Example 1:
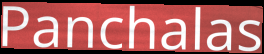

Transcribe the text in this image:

Panchalas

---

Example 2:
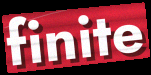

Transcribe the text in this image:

finite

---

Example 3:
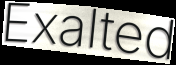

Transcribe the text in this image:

Exalted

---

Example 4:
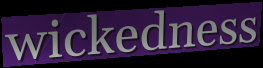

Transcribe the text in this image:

wickedness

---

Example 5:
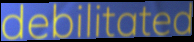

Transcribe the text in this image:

debilitated